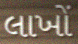
લાખોં